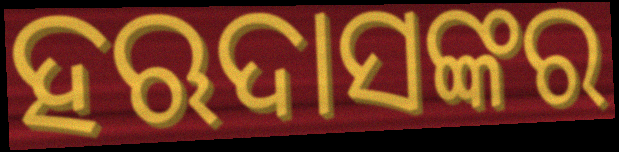
ହଋଦାସଙ୍କର